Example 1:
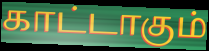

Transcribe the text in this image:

காட்டாகும்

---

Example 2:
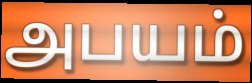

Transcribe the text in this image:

அபயம்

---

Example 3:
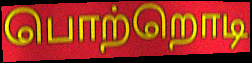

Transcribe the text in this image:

பொற்றொடி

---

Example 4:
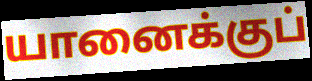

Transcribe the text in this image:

யானைக்குப்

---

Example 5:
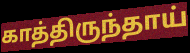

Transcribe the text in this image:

காத்திருந்தாய்